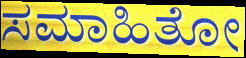
ಸಮಾಹಿತೋ